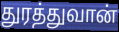
துரத்துவான்